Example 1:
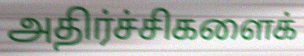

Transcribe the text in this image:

அதிர்ச்சிகளைக்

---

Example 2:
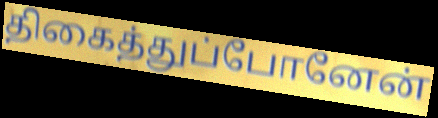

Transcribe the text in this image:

திகைத்துப்போனேன்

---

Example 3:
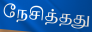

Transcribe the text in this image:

நேசித்தது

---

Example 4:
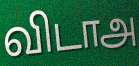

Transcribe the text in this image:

விடாஅ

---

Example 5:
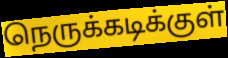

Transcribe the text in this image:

நெருக்கடிக்குள்